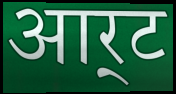
आर्ट